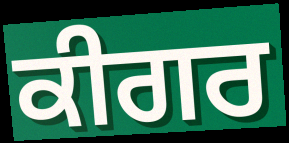
ਕੀਗਰ